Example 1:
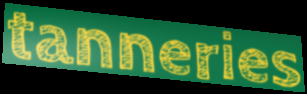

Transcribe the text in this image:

tanneries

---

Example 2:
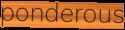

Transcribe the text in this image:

ponderous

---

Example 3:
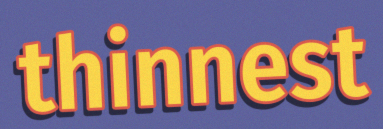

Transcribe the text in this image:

thinnest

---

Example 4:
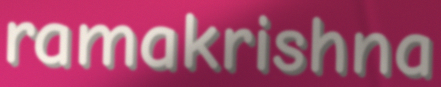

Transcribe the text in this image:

ramakrishna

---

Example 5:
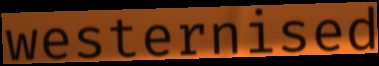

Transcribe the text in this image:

westernised